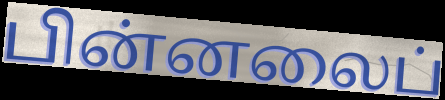
பின்னலைப்